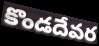
కొండదేవర